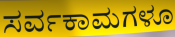
ಸರ್ವಕಾಮಗಳೂ